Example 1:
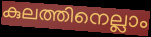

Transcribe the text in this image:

കുലത്തിനെല്ലാം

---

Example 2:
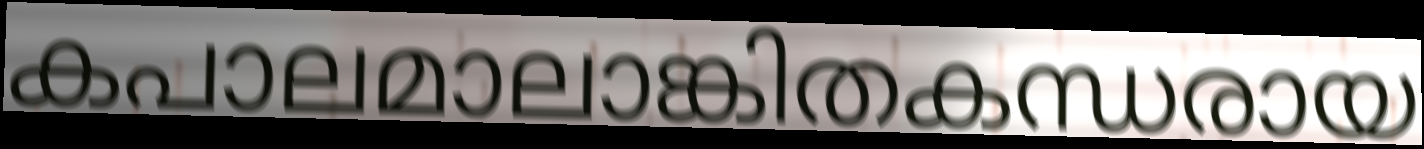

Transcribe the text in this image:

കപാലമാലാങ്കിതകന്ധരായ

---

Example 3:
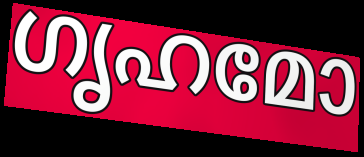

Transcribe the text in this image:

ഗൃഹമോ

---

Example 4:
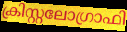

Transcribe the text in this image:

ക്രിസ്റ്റലോഗ്രാഫി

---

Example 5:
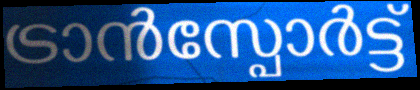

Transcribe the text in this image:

ട്രാൻസ്പോർട്ട്